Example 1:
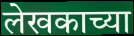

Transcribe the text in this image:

लेखकाच्या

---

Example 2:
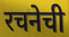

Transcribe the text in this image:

रचनेची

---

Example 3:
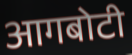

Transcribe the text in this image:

आगबोटी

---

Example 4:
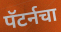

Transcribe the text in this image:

पॅटर्नचा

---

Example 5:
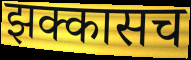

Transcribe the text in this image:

झक्कासच